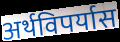
अर्थविपर्यास